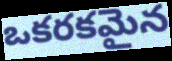
ఒకరకమైన